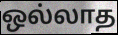
ஒல்லாத